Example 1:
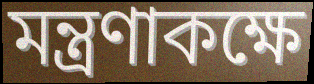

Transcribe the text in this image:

মন্ত্রণাকক্ষে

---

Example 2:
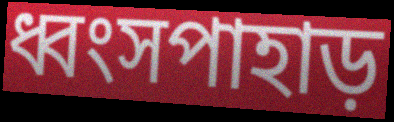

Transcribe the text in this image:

ধ্বংসপাহাড়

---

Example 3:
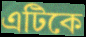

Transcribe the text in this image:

এটিকে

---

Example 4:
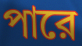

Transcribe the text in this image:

পারে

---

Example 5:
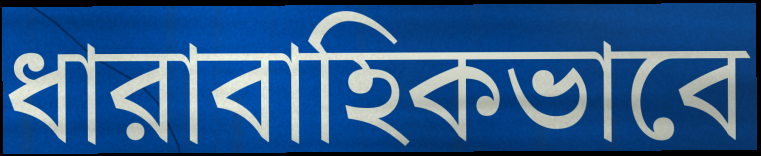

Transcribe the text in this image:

ধারাবাহিকভাবে